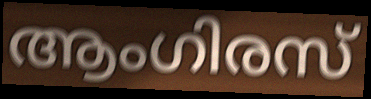
ആംഗിരസ്